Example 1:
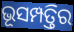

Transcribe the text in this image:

ଭୂସମ୍ପତ୍ତିର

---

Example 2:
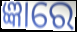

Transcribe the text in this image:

ଜ୍ଞାରେ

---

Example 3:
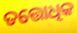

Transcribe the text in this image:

ତତ୍ତୋଧିକ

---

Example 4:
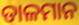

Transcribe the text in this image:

ଡାଳମାନ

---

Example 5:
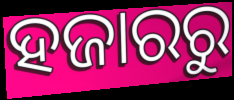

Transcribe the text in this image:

ହଜାରରୁ